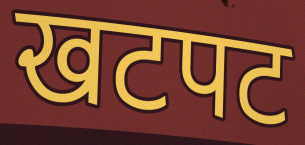
खटपट